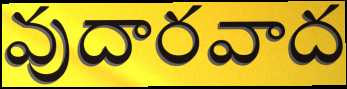
వుదారవాద